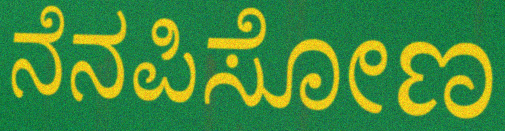
ನೆನಪಿಸೋಣ